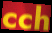
cch